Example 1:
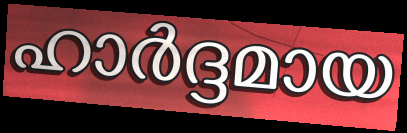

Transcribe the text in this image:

ഹാർദ്ദമായ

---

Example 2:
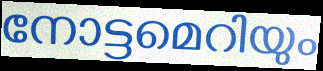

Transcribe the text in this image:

നോട്ടമെറിയും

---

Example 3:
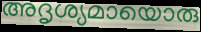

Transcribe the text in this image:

അദൃശ്യമായൊരു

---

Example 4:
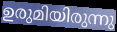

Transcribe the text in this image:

ഉരുമിയിരുന്നു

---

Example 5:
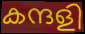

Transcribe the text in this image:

കന്ദളി